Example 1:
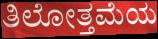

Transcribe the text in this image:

ತಿಲೋತ್ತಮೆಯ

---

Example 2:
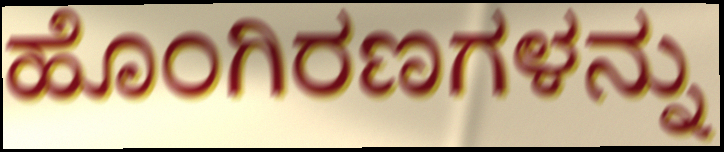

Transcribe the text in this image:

ಹೊಂಗಿರಣಗಳನ್ನು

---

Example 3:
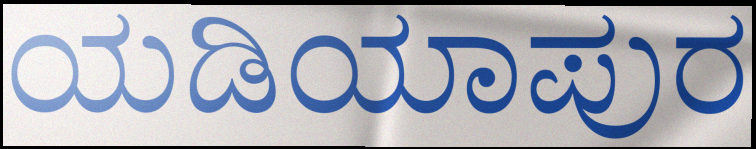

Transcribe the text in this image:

ಯಡಿಯಾಪುರ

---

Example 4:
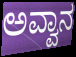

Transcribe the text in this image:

ಅವ್ವಾನ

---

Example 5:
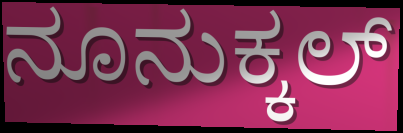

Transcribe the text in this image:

ನೂನುಕ್ಕಲ್